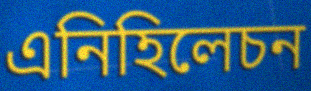
এনিহিলেচন